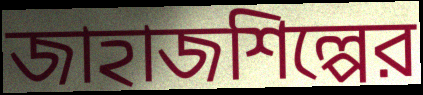
জাহাজশিল্পের